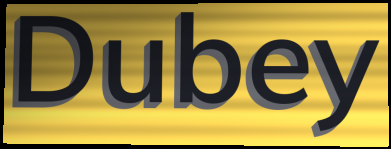
Dubey